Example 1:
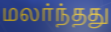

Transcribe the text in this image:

மலர்ந்தது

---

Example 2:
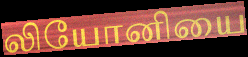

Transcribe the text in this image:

லியோனியை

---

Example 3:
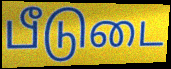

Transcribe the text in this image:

பீடுடை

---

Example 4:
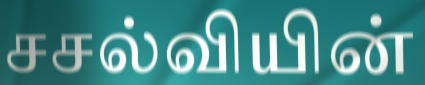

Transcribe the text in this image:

சசல்வியின்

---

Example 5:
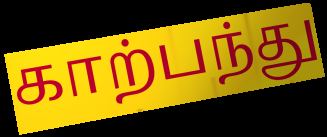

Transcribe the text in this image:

காற்பந்து